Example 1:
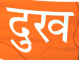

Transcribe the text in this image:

दुख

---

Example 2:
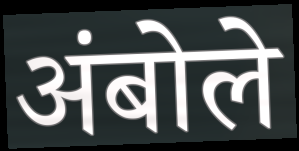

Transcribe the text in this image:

अंबोले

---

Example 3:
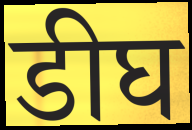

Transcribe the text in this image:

डीघ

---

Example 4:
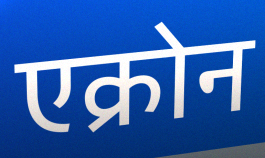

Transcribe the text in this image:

एक्रोन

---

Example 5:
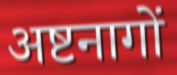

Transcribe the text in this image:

अष्टनागों